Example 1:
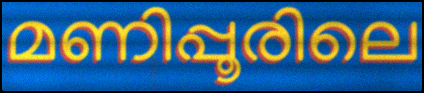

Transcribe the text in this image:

മണിപ്പൂരിലെ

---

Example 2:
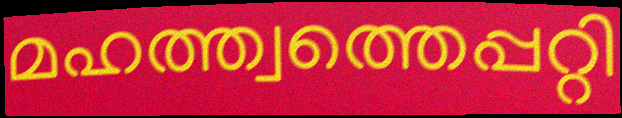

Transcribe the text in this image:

മഹത്ത്വത്തെപ്പറ്റി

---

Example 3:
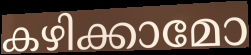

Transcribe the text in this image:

കഴിക്കാമോ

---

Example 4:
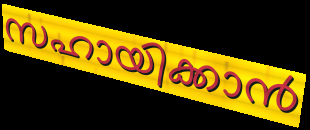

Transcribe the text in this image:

സഹായിക്കാൻ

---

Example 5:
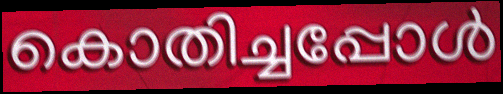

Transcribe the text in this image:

കൊതിച്ചപ്പോൾ